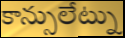
కాన్సులేట్ను